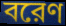
বরেণ